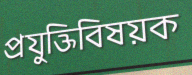
প্রযুক্তিবিষয়ক